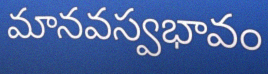
మానవస్వభావం